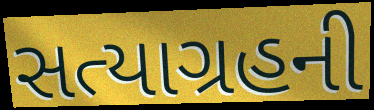
સત્યાગ્રહની